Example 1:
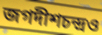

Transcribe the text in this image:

জগদীশচন্দ্রও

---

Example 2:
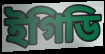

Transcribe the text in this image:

ইগিডি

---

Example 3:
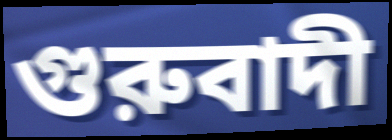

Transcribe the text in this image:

গুরুবাদী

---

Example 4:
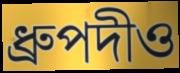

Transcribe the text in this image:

ধ্রুপদীও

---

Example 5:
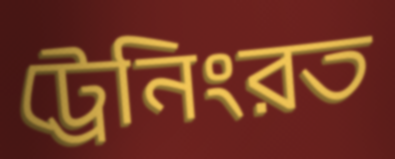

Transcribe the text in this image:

ট্রেনিংরত